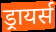
ड्रायर्स